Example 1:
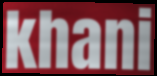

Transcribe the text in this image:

khani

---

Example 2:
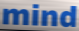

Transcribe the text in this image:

mind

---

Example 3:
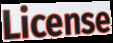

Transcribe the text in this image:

License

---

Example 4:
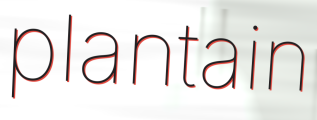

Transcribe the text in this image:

plantain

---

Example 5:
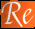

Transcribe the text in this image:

Re